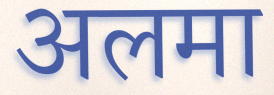
अलमा